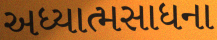
અધ્યાત્મસાધના